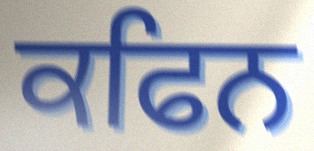
ਕਫਿਨ